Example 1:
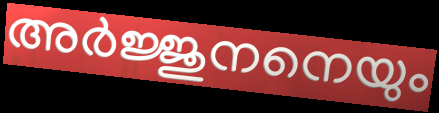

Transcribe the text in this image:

അർജ്ജുനനെയും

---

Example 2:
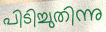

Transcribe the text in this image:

പിടിച്ചുതിന്നു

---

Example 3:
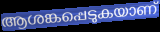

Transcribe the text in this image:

ആശങ്കപ്പെടുകയാണ്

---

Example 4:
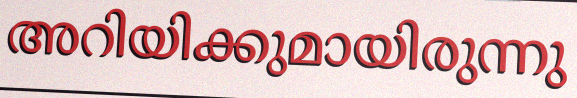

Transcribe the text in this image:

അറിയിക്കുമായിരുന്നു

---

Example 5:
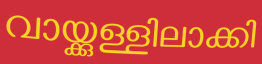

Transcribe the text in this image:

വായ്ക്കുള്ളിലാക്കി